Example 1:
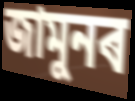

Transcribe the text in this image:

জামুনৰ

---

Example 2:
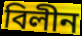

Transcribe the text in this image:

বিলীন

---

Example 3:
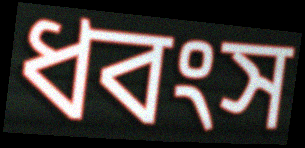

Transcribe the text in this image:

ধবংস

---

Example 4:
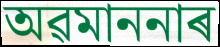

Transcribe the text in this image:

অৱমাননাৰ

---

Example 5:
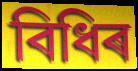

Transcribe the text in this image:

বিধিৰ